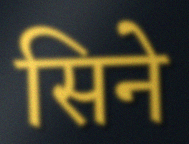
सिने